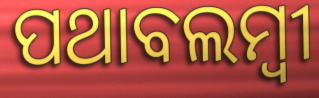
ପଥାବଲମ୍ବୀ